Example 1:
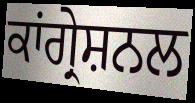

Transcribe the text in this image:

ਕਾਂਗ੍ਰੇਸ਼ਨਲ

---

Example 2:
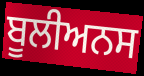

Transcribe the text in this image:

ਬੂਲੀਅਨਸ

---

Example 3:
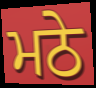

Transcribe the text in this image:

ਮਠੇ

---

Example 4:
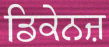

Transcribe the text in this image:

ਡਿਕੇਨਜ਼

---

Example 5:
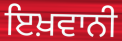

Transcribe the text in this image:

ਇਖ਼ਵਾਨੀ